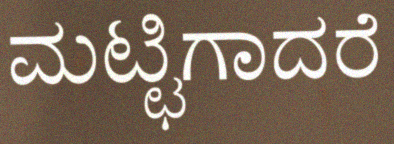
ಮಟ್ಟಿಗಾದರೆ